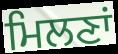
ਮਿਲਣਾਂ